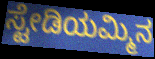
ಸ್ಟೇಡಿಯಮ್ಮಿನ